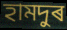
হামদুৰ